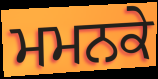
ਮਮਨਕੇ